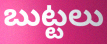
బుట్టలు